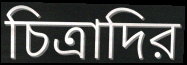
চিত্রাদির